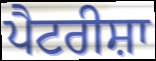
ਪੈਟਰੀਸ਼ਾ